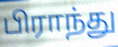
பிராந்து